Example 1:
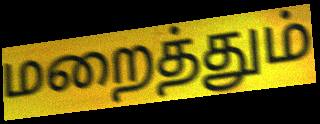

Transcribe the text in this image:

மறைத்தும்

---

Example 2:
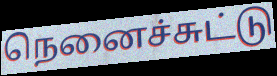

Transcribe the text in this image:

நெனைச்சுட்டு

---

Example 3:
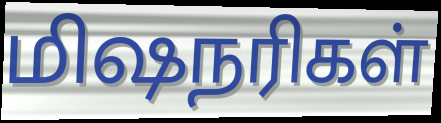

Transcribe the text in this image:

மிஷநரிகள்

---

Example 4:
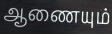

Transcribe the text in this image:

ஆணையும்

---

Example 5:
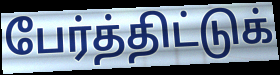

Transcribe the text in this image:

பேர்த்திட்டுக்